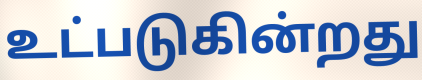
உட்படுகின்றது